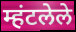
म्हंटलेले